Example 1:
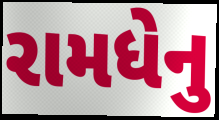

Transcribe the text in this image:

રામધેનુ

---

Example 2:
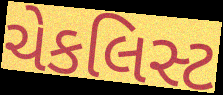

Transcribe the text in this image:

ચેકલિસ્ટ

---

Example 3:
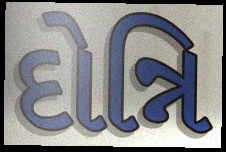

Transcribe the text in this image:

દોન્નિ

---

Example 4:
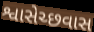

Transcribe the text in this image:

શ્વાસેચ્છવાસ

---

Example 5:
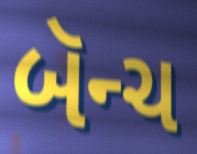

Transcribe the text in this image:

બૅન્ચ